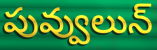
పువ్వులున్